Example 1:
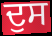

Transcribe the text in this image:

ਦੁਸ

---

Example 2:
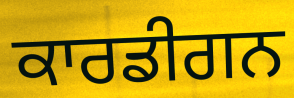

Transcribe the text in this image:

ਕਾਰਡੀਗਨ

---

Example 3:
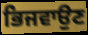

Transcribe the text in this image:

ਭਿਜਵਾਉਣ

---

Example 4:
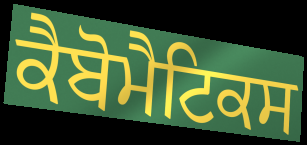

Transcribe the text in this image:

ਕੈਬੋਮੈਟਿਕਸ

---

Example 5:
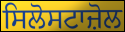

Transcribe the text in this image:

ਸਿਲੋਸਟਾਜ਼ੋਲ